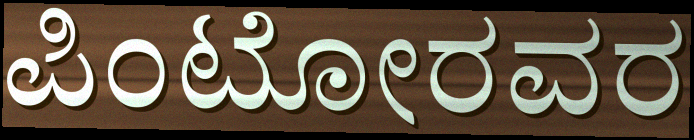
ಪಿಂಟೋರವರ